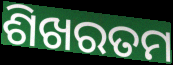
ଶିଖରତମ